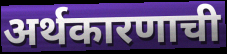
अर्थकारणाची